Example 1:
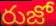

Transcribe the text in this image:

రుజో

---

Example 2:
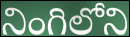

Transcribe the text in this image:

నింగిలోని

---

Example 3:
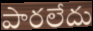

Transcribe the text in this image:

పారలేదు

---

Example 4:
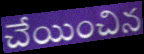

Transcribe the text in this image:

చేయించిన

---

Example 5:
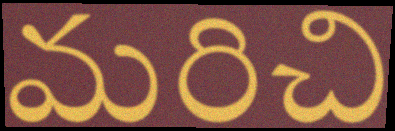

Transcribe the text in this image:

మరిచి